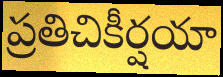
ప్రతిచికీర్షయా